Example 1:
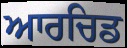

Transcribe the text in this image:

ਆਰਚਿਡ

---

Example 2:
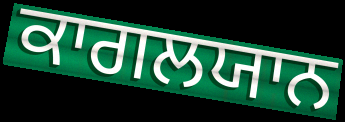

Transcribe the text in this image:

ਕਾਗਲਯਾਨ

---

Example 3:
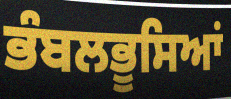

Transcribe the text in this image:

ਭੰਬਲਭੂਸਿਆਂ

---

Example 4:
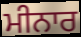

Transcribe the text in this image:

ਮੀਨਾਰ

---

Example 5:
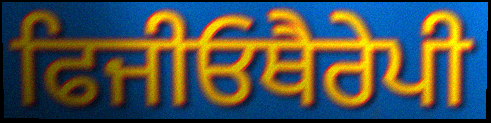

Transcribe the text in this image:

ਫਿਜੀਓਥੈਰੇਪੀ